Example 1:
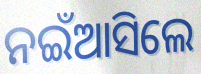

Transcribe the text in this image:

ନଇଁଆସିଲେ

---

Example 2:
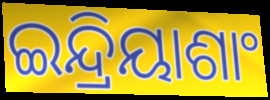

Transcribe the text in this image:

ଇନ୍ଦ୍ରିୟାଶାଂ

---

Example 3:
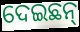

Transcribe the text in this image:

ଦେଇଛନ୍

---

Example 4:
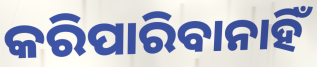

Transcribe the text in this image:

କରିପାରିବାନାହିଁ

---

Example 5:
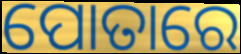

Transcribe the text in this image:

ପୋତାରେ